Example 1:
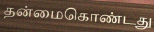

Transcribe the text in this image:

தன்மைகொண்டது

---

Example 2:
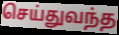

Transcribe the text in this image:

செய்துவந்த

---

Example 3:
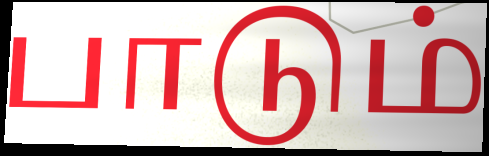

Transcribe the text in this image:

பாடும்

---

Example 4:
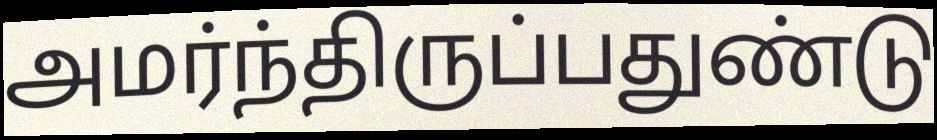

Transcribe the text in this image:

அமர்ந்திருப்பதுண்டு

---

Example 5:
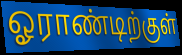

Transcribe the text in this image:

ஓராண்டிற்குள்